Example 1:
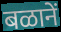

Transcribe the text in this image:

बळानें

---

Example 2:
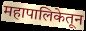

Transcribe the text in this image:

महापालिकेतून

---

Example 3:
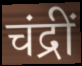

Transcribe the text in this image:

चंद्रीं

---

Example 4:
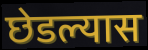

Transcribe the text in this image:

छेडल्यास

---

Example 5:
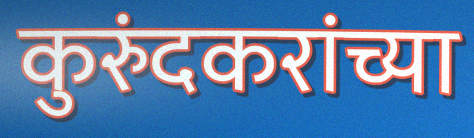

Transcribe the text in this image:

कुरुंदकरांच्या